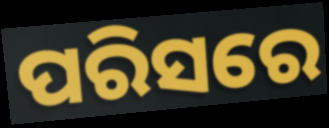
ପରିସରେ